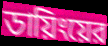
ডায়িংয়ের